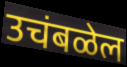
उचंबळेल